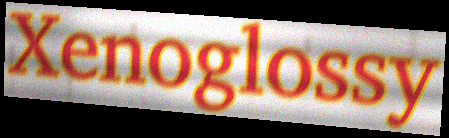
Xenoglossy